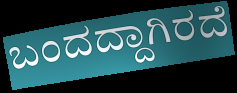
ಬಂದದ್ದಾಗಿರದೆ